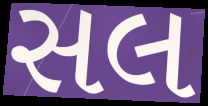
સલ